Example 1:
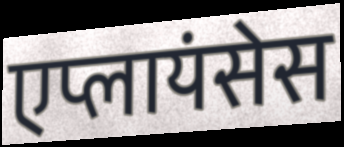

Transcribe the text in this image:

एप्लायंसेस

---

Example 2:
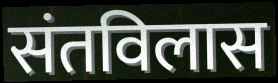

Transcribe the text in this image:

संतविलास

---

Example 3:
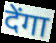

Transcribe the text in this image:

देंगा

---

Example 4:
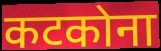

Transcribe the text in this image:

कटकोना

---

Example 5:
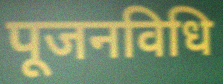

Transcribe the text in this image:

पूजनविधि